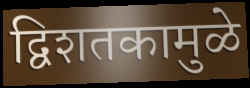
द्विशतकामुळे